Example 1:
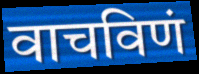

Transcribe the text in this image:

वाचविणं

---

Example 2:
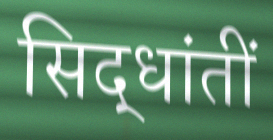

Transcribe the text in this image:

सिद्धांतीं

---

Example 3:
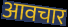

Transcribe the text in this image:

आवचार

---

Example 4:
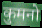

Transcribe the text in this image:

कुमनो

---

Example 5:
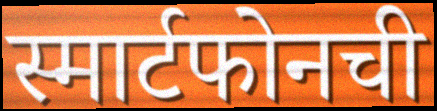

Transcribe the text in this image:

स्मार्टफोनची